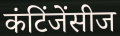
कंटिंजेंसीज